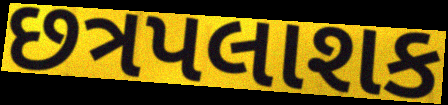
છત્રપલાશક